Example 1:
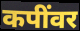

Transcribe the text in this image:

कपींवर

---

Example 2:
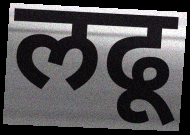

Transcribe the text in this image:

लढू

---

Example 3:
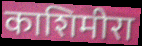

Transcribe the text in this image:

काशिमीरा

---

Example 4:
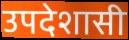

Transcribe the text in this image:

उपदेशासी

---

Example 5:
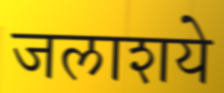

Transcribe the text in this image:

जलाशये